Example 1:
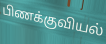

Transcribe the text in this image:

பிணக்குவியல்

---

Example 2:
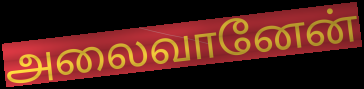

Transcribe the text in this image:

அலைவானேன்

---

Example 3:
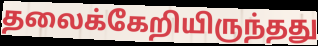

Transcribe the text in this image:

தலைக்கேறியிருந்தது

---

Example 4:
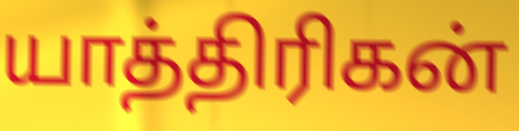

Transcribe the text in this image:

யாத்திரிகன்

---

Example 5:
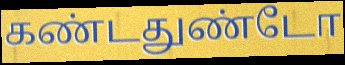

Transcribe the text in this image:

கண்டதுண்டோ